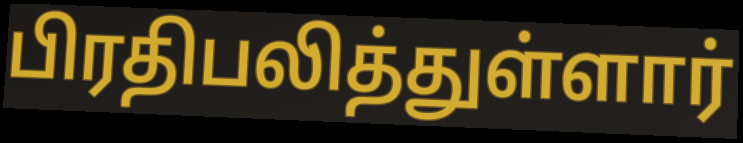
பிரதிபலித்துள்ளார்